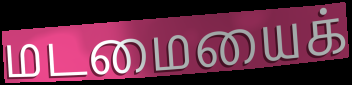
மடமையைக்